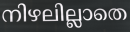
നിഴലില്ലാതെ